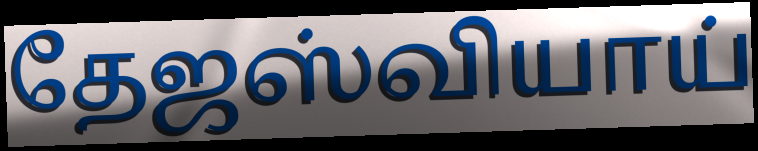
தேஜஸ்வியாய்